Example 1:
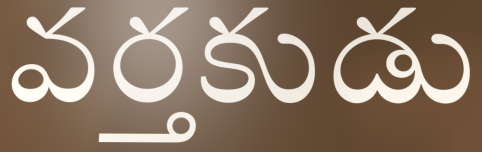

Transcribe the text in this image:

వర్తకుడు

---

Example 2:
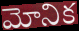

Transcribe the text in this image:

మోనిక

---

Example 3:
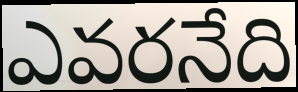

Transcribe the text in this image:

ఎవరనేది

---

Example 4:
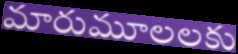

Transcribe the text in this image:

మారుమూలలకు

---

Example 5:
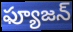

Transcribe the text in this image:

ఫ్యూజన్